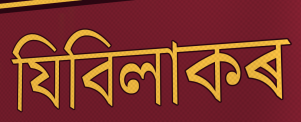
যিবিলাকৰ